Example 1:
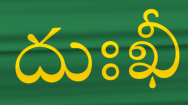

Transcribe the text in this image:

దుఃఖీ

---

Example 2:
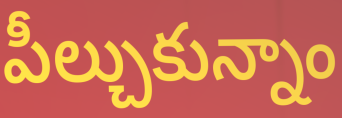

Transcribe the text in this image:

పీల్చుకున్నాం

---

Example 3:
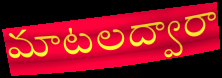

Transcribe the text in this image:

మాటలద్వారా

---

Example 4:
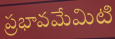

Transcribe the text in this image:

ప్రభావమేమిటి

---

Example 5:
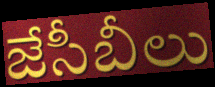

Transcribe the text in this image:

జేసీబీలు